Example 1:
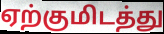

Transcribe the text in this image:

ஏற்குமிடத்து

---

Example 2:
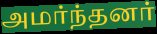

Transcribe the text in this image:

அமர்ந்தனர்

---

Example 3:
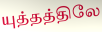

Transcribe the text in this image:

யுத்தத்திலே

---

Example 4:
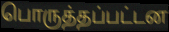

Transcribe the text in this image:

பொருத்தப்பட்டன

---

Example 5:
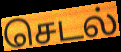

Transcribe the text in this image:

செடல்